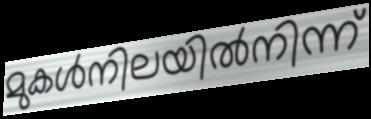
മുകൾനിലയിൽനിന്ന്